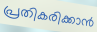
പ്രതികരിക്കാൻ